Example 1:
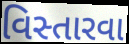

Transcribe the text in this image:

વિસ્તારવા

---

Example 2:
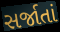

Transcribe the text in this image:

સર્જાતાં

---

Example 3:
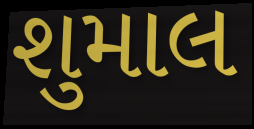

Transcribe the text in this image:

શુમાલ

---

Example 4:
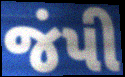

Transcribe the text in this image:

જંપી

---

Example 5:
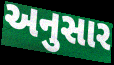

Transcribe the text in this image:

અનુસાર